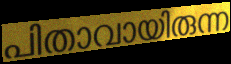
പിതാവായിരുന്ന